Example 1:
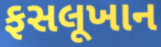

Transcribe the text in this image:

ફસલૂખાન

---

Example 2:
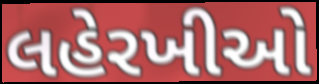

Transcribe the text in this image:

લહેરખીઓ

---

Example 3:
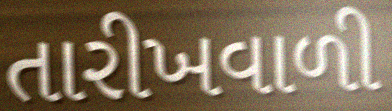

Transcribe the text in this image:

તારીખવાળી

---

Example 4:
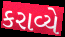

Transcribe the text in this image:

કરાવ્યે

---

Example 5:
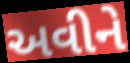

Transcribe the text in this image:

અવીને